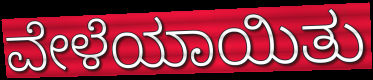
ವೇಳೆಯಾಯಿತು